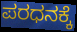
ಪರಧನಕ್ಕೆ